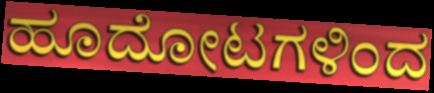
ಹೂದೋಟಗಳಿಂದ